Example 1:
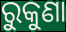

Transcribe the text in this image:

ରୁକୁଣା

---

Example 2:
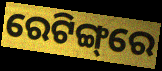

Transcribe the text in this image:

ରେଟିଙ୍ଗ୍‌ରେ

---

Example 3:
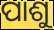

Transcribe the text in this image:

ପାଶୁ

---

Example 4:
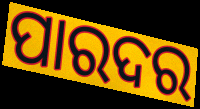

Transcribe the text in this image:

ପାରଦର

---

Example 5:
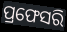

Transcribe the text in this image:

ପ୍ରଫେସରି